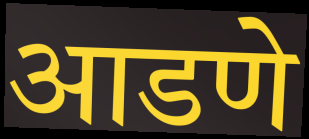
आडणे